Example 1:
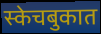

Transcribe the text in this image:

स्केचबुकात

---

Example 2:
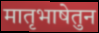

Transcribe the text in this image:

मातृभाषेतुन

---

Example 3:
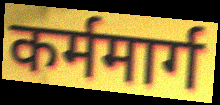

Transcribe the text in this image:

कर्ममार्ग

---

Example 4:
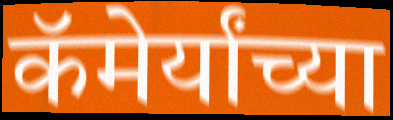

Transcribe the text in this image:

कॅमेर्यांच्या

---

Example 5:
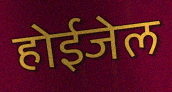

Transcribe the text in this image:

होईजेल